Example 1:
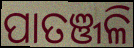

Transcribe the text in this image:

ପାତଞ୍ଜଳି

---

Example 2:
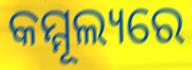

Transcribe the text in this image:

କମ୍ମୂଲ୍ୟରେ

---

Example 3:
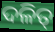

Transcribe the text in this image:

ଦଳିତ୍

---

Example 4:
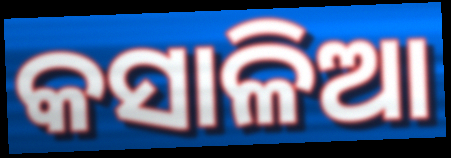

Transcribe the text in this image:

କସାଳିଆ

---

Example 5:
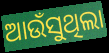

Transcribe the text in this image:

ଆଉଁସୁଥିଲା